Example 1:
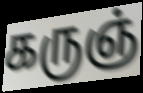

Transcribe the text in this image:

கருஞ்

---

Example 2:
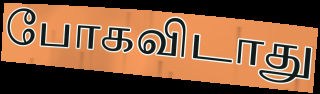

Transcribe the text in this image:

போகவிடாது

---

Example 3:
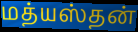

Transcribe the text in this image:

மத்யஸ்தன்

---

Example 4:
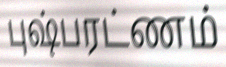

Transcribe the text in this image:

புஷ்பரட்ணம்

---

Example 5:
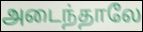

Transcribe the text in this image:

அடைந்தாலே